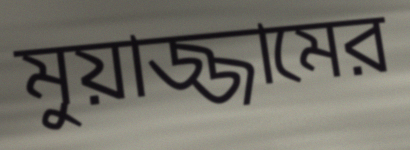
মুয়াজ্জামের